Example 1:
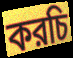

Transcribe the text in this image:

করচি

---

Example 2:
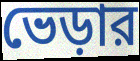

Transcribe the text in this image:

ভেড়ার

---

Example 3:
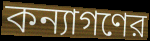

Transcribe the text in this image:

কন্যাগণের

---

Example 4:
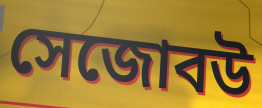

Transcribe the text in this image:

সেজোবউ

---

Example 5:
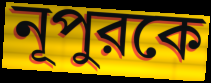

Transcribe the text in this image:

নূপুরকে